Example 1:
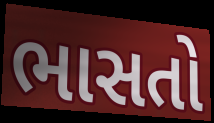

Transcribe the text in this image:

ભાસતો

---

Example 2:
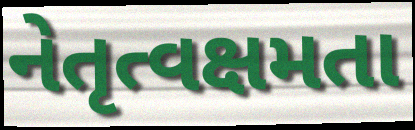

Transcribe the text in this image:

નેતૃત્વક્ષમતા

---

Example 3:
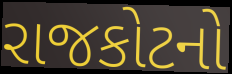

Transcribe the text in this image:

રાજકોટનો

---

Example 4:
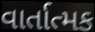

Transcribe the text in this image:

વાર્તાત્મક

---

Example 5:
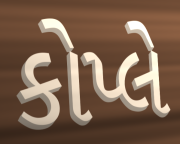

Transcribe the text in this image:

કોપ્લે